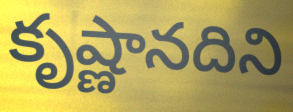
కృష్ణానదిని